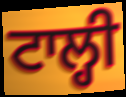
ਟਾਲ੍ਹੀ